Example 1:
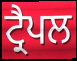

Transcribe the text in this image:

ਟ੍ਰੈਪਲ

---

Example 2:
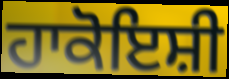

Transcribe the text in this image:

ਹਾਕੋਇਸ਼ੀ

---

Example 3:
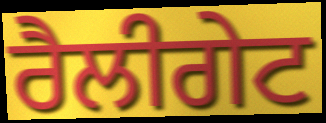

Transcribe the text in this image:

ਰੈਲੀਗੇਟ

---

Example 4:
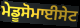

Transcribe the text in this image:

ਮੇਡੂਸੋਮਾਈਸੇਟ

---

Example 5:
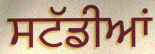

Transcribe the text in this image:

ਸਟੱਡੀਆਂ